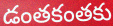
డంతకంతకు